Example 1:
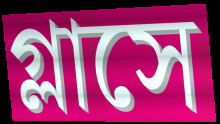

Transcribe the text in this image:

গ্লাসে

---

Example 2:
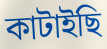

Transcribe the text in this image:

কাটাইছি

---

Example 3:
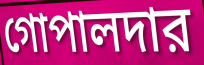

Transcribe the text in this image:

গোপালদার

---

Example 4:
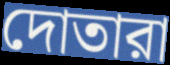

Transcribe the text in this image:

দোতারা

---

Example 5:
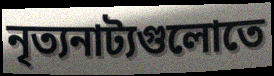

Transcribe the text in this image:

নৃত্যনাট্যগুলোতে